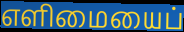
எளிமையைப்